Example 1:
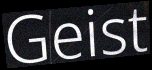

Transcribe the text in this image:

Geist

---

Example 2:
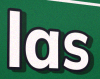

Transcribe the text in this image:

las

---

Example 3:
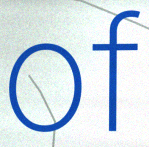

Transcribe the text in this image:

of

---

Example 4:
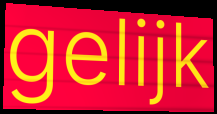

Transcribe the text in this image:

gelijk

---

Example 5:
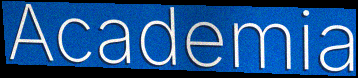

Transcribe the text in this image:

Academia